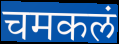
चमकलं